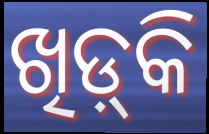
ଖିଡ଼୍‌କି